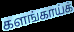
களங்காய்க்